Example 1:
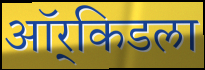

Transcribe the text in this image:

ऑर्किडला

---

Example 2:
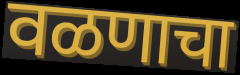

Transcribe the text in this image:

वळणाचा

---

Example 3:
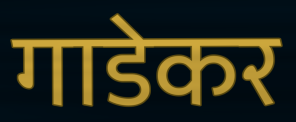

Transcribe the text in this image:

गाडेकर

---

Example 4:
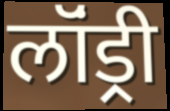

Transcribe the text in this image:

लॉंड्री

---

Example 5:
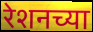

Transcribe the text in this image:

रेशनच्या